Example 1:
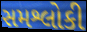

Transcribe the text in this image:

સમશ્લોકી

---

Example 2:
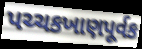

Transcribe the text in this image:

પચ્ચકખાણપૂર્વક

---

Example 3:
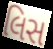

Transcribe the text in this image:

લિસ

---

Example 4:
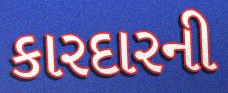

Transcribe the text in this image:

કારદારની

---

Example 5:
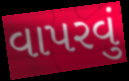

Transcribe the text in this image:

વાપરવું